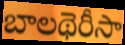
బాలథెరీసా